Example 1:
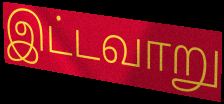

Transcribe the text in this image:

இட்டவாறு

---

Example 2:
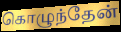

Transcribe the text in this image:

கொழுந்தேன்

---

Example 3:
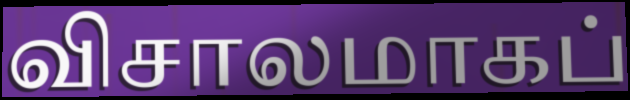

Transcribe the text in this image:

விசாலமாகப்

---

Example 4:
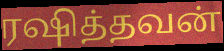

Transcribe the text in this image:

ரஷித்தவன்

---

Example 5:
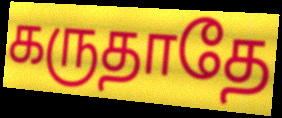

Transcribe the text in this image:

கருதாதே